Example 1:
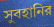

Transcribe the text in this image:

সুবহানির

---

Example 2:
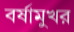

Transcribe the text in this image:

বর্ষামুখর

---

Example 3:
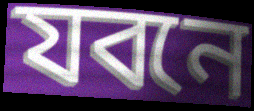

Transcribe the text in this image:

যবনে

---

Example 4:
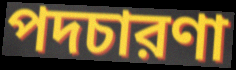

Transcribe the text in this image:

পদচারণা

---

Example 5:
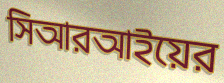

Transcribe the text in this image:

সিআরআইয়ের